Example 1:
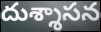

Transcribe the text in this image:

దుశ్శాసన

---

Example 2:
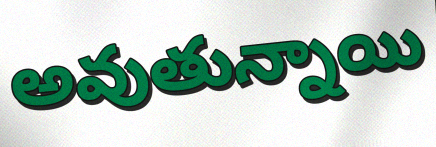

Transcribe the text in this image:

అవుతున్నాయి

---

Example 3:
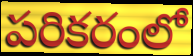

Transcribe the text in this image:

పరికరంలో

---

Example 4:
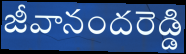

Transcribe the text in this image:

జీవానందరెడ్డి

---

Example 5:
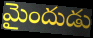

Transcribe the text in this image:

మైందుడు